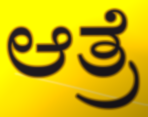
ಆತ್ರೆ